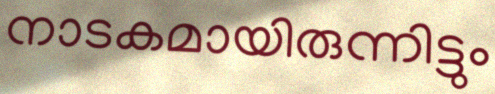
നാടകമായിരുന്നിട്ടും